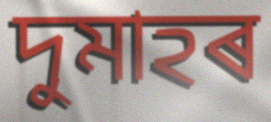
দুমাহৰ